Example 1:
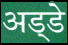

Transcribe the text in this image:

अड्‍डे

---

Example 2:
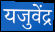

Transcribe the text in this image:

यजुवेंद्र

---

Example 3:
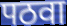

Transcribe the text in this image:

पठवा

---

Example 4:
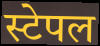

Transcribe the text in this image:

स्टेपल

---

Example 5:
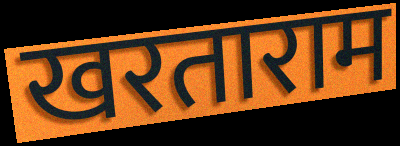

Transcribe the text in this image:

खरताराम